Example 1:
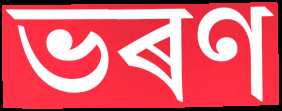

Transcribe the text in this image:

ভৰণ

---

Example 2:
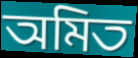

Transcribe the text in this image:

অমিত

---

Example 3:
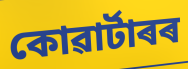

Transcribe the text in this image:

কোৱাৰ্টাৰৰ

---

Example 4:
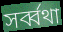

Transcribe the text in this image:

সৰ্ব্বথা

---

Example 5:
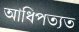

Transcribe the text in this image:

আধিপত্যত